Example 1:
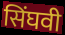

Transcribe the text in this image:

सिंघवी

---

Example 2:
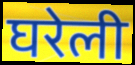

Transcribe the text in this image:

घरेली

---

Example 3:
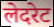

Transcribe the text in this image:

लेदरेट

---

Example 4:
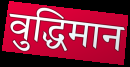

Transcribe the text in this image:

वुद्धिमान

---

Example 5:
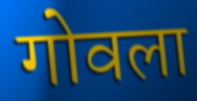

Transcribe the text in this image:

गोवला